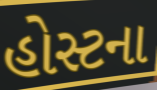
હોસ્ટના